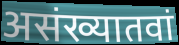
असंख्यातवां